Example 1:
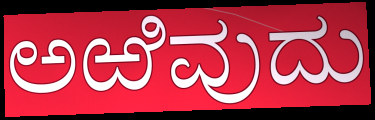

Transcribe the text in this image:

ಅಱಿವುದು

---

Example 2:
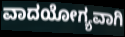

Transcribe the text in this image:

ವಾದಯೋಗ್ಯವಾಗಿ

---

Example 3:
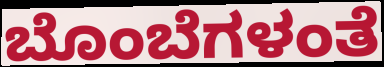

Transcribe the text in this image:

ಬೊಂಬೆಗಳಂತೆ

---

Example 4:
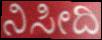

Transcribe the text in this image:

ನಿಸೀದಿ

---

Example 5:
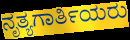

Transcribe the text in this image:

ನೃತ್ಯಗಾರ್ತಿಯರು